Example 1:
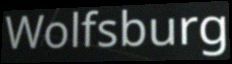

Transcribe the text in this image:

Wolfsburg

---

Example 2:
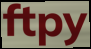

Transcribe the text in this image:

ftpy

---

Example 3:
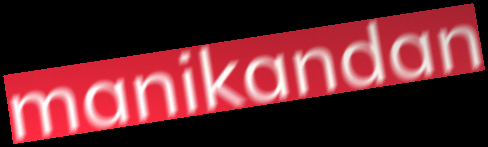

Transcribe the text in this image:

manikandan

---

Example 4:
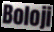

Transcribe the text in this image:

Boloji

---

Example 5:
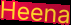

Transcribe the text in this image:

Heena